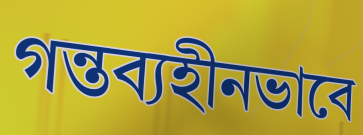
গন্তব্যহীনভাবে